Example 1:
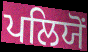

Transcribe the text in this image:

ਪਲਿਯੋਂ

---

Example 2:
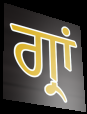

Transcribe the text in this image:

ਗ੍ਰਾਂ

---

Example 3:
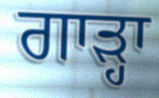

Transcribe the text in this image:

ਗਾੜ੍ਹਾ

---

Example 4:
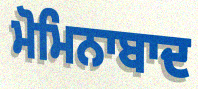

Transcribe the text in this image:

ਮੋਮਿਨਾਬਾਦ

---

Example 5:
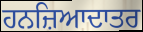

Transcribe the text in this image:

ਹਨਜ਼ਿਆਦਾਤਰ